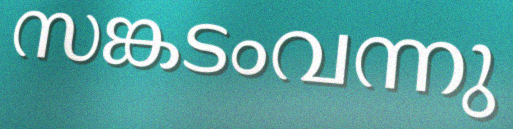
സങ്കടംവന്നു